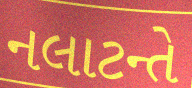
નલાટન્તે